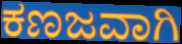
ಕಣಜವಾಗಿ